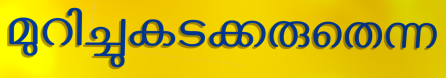
മുറിച്ചുകടക്കരുതെന്ന